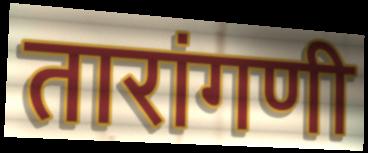
तारांगणी